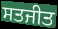
ਸਤਜੀਤ